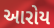
આરોય